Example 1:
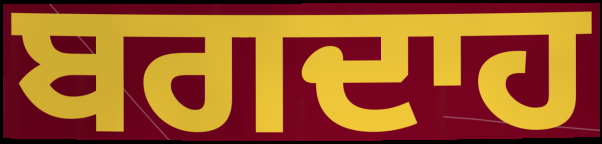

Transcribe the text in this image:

ਬਗਦਾਹ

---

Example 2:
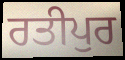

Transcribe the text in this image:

ਰਤੀਪੁਰ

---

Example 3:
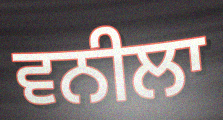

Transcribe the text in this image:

ਵਨੀਲਾ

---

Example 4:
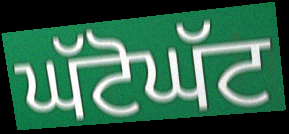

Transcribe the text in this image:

ਘੱਟੋਘੱਟ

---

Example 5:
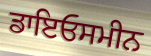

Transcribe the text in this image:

ਡਾਇਓਸਮੀਨ